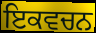
ਇਕਵਚਨ